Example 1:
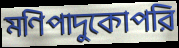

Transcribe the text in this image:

মণিপাদুকোপরি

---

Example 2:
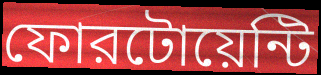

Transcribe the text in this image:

ফোরটোয়েন্টি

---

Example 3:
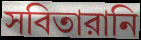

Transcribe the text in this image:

সবিতারানি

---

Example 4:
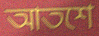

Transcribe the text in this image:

আতশে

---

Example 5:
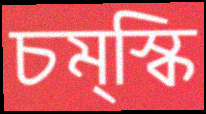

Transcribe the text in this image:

চম্‌স্কি